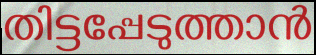
തിട്ടപ്പേടുത്താൻ